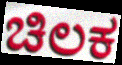
ಚಿಲಕ